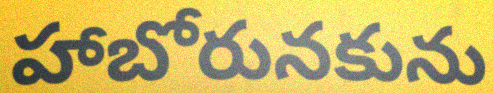
హాబోరునకును